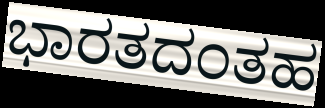
ಭಾರತದಂತಹ